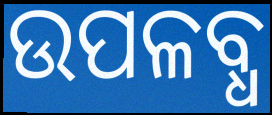
ଉପଳବ୍ଧ